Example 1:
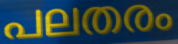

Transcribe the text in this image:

പലതരം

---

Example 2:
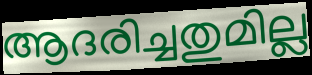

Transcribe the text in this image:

ആദരിച്ചതുമില്ല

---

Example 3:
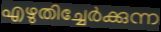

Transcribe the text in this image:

എഴുതിച്ചേർക്കുന്ന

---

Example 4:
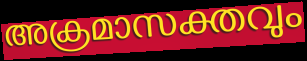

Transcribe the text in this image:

അക്രമാസക്തവും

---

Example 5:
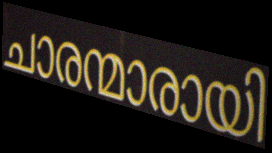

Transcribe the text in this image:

ചാരന്മാരായി